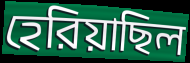
হেরিয়াছিল